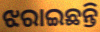
ଝରାଇଛନ୍ତି